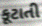
કૂટાતી